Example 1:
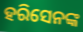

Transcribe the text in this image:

ହରିସେନଙ୍କ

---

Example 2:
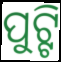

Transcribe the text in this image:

ପୁଟ୍ଟି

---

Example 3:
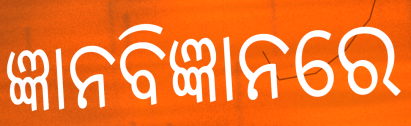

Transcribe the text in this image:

ଜ୍ଞାନବିଜ୍ଞାନରେ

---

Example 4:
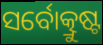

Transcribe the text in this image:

ସର୍ବୋତ୍କ୍ରୁଷ୍ଟ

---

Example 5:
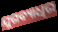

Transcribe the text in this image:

ଯୁଗବ୍ୟାଧିର